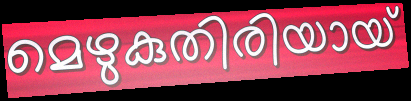
മെഴുകുതിരിയായ്